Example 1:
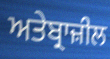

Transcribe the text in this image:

ਅਤੇਬ੍ਰਾਜ਼ੀਲ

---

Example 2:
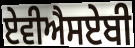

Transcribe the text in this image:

ਏਵੀਐਸਏਬੀ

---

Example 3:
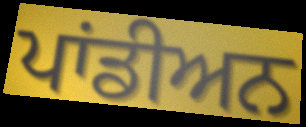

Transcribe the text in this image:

ਪਾਂਡੀਅਨ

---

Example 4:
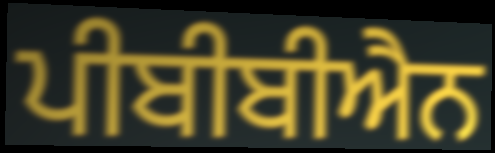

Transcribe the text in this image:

ਪੀਬੀਬੀਐਨ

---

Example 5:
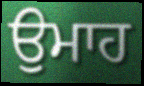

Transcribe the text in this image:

ਉਮਾਹ